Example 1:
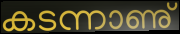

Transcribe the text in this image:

കടന്നാണു്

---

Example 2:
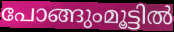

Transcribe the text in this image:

പോങ്ങുംമൂട്ടിൽ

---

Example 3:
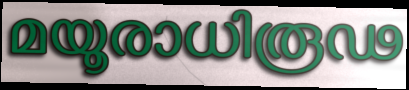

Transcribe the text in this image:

മയൂരാധിരൂഢ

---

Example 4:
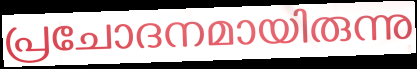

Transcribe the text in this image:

പ്രചോദനമായിരുന്നു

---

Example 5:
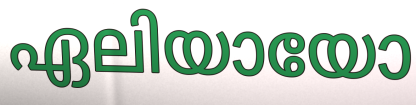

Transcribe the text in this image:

ഏലിയായോ